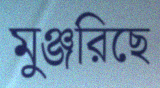
মুঞ্জরিছে